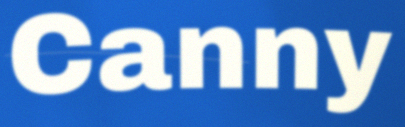
Canny